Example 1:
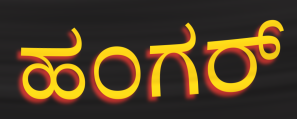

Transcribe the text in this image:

ಹಂಗರ್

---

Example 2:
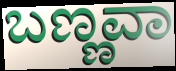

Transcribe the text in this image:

ಬಣ್ಣವಾ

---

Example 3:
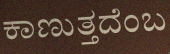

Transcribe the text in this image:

ಕಾಣುತ್ತದೆಂಬ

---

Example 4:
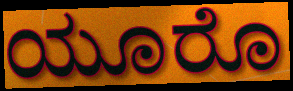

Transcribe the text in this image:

ಯೂರೊ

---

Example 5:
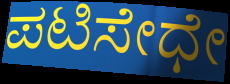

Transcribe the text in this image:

ಪಟಿಸೇಧೇ